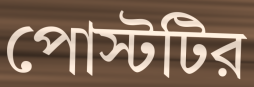
পোস্টটির